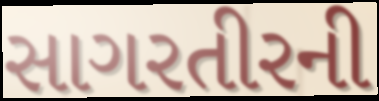
સાગરતીરની